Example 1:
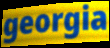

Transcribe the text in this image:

georgia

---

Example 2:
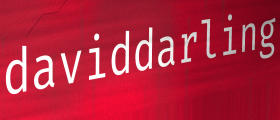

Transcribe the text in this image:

daviddarling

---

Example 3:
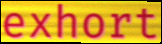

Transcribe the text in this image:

exhort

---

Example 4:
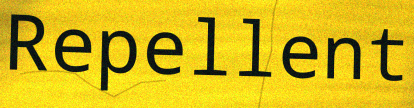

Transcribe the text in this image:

Repellent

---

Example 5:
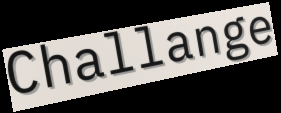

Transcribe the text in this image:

Challange